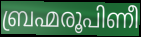
ബ്രഹ്മരൂപിണീ